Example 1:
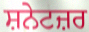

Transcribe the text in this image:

ਸ਼ਨੇਟਜ਼ਰ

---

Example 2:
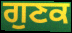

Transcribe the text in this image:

ਗੁਣਕ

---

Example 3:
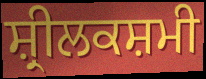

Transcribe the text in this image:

ਸ਼੍ਰੀਲਕਸ਼ਮੀ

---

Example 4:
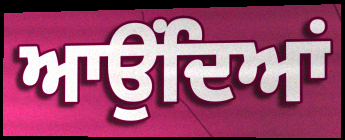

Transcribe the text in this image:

ਆਉਂਦਿਆਂ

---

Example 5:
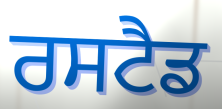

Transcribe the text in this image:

ਰਸਟੈਡ